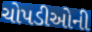
ચોપડીઓની